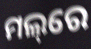
ମଲ୍‌ରେ